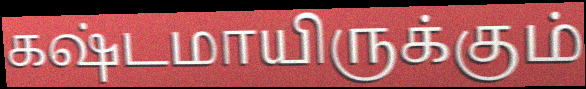
கஷ்டமாயிருக்கும்